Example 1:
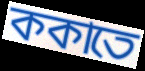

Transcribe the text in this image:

ককাতে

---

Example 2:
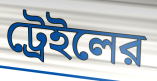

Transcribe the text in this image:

ট্রেইলের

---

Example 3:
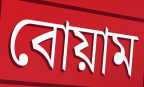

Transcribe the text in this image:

বোয়াম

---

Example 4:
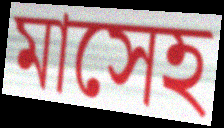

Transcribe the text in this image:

মাসেহ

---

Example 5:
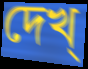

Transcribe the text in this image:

দেখ্